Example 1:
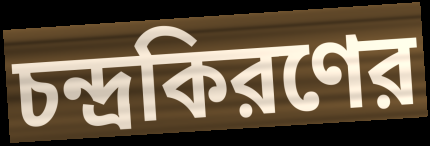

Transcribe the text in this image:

চন্দ্রকিরণের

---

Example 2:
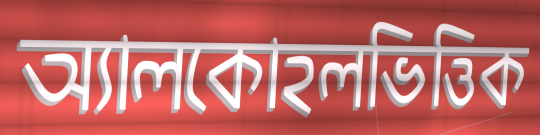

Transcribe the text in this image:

অ্যালকোহলভিত্তিক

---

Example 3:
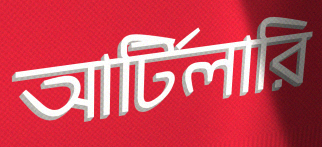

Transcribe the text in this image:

আর্টিলারি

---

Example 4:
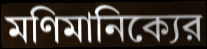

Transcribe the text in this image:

মণিমানিক্যের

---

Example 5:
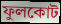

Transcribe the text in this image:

ফুলকোট